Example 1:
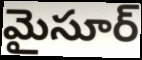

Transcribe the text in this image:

మైసూర్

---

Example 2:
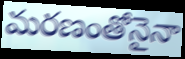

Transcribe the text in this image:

మరణంతోనైనా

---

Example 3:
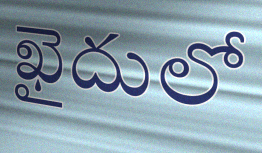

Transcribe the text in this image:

ఖైదులో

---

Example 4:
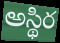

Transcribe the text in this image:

అస్థిర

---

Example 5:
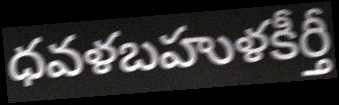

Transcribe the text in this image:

ధవళబహుళకీర్తీ